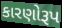
કારણોરૂપ